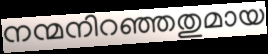
നന്മനിറഞ്ഞതുമായ